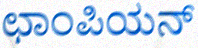
ಛಾಂಪಿಯನ್